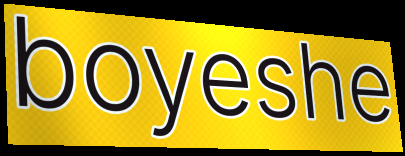
boyeshe